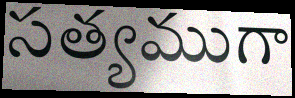
సత్యముగా